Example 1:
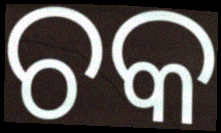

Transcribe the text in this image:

ଚକ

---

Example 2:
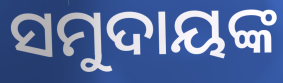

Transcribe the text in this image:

ସମୁଦାୟଙ୍କ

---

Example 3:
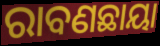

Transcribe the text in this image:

ରାବଣଛାୟା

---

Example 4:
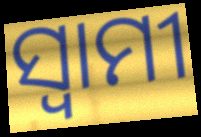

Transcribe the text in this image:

ସ୍ବାମୀ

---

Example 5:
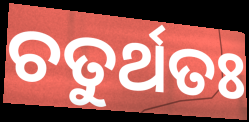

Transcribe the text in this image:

ଚତୁର୍ଥତଃ